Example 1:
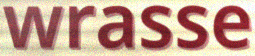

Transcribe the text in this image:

wrasse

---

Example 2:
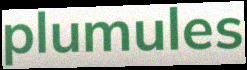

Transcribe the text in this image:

plumules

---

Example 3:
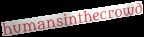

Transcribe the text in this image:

humansinthecrowd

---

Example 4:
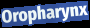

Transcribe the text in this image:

Oropharynx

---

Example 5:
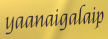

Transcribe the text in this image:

yaanaigalaip